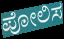
ಪೋಲಿಸ